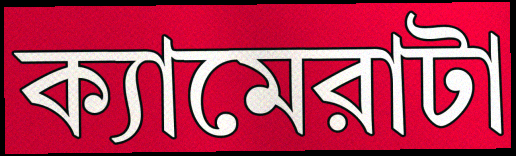
ক্যামেরাটা